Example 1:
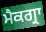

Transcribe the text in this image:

ਮੈਕਗ੍ਰਾ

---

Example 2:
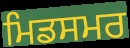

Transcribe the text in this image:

ਮਿਡਸਮਰ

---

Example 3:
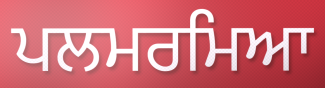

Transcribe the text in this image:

ਪਲਮਰਮਿਆ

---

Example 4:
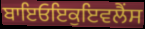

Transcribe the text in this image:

ਬਾਇਓਇਕੁਇਵਲੈਂਸ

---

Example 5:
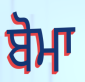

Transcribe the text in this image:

ਬੋਮਾ